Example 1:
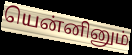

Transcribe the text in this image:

யென்னினும்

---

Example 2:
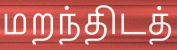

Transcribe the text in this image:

மறந்திடத்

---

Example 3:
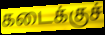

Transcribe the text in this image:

கடைக்குச்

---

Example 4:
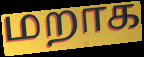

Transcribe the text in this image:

மறாக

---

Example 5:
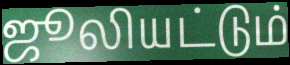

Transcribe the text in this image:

ஜூலியட்டும்